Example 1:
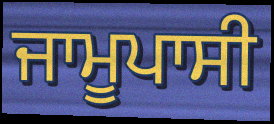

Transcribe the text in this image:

ਜਾਮੂਪਾਸੀ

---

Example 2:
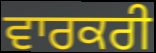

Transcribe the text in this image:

ਵਾਰਕਰੀ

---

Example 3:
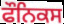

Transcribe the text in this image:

ਫੌਨਿਕਸ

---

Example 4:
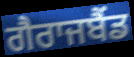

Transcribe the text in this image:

ਗੈਰਾਜਬੈਂਡ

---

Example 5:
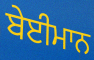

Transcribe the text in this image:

ਬੇਈਮਾਨ